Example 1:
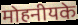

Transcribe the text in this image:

मोहनीयके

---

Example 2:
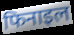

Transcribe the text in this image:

फिनाइल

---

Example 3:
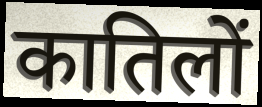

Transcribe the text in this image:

कातिलों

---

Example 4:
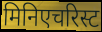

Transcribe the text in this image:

मिनिएचरिस्ट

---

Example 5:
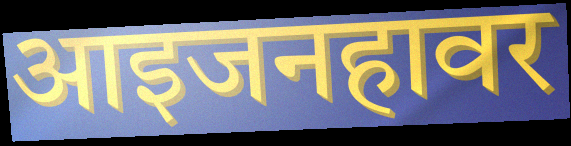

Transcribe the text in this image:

आइजनहावर